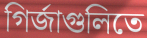
গির্জাগুলিতে